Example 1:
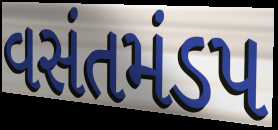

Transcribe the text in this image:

વસંતમંડપ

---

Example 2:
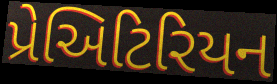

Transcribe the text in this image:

પ્રેઅિટિરિયન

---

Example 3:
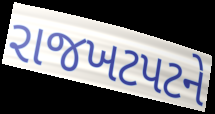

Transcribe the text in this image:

રાજખટપટને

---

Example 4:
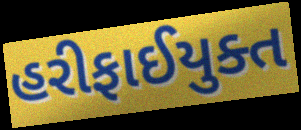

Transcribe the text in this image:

હરીફાઈયુક્ત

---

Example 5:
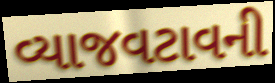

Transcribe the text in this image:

વ્યાજવટાવની